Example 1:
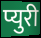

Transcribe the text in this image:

प्युरी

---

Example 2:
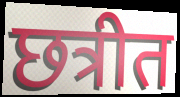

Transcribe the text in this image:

छत्रीत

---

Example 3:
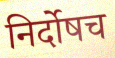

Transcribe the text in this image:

निर्दोषच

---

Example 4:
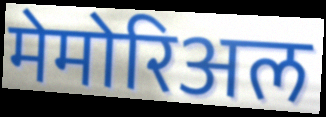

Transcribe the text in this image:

मेमोरिअल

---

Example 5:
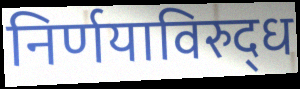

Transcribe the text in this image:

निर्णयाविरुद्ध